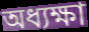
অধ্যক্ষা